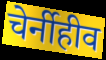
चेर्नीहीव